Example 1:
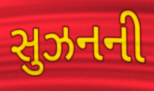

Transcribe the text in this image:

સુઝનની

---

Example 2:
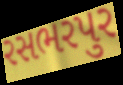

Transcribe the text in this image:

રસભરપુર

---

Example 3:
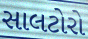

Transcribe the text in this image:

સાલટોરો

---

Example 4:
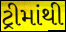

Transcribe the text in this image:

ટ્રીમાંથી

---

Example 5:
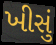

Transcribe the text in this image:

ખીસું